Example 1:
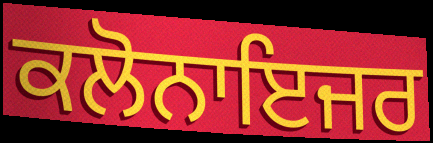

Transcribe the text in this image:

ਕਲੋਨਾਇਜਰ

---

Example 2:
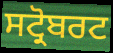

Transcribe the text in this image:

ਸਟ੍ਰੋਬਰਟ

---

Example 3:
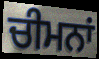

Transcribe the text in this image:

ਚੀਮਨਾਂ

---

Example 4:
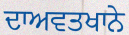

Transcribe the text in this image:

ਦਾਅਵਤਖਾਨੇ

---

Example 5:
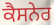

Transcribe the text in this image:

ਕੈਸਨੇਰ